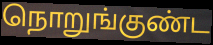
நொறுங்குண்ட